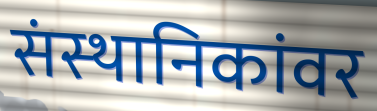
संस्थानिकांवर